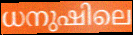
ധനുഷിലെ